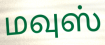
மவுஸ்